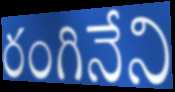
రంగినేని